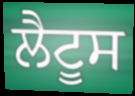
ਲੈਟੂਸ